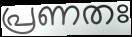
പ്രണതഃ